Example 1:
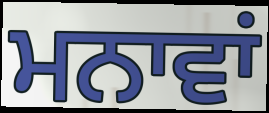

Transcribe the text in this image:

ਮਨਾਵਾਂ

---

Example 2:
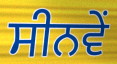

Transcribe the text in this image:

ਸੀਨਵੇਂ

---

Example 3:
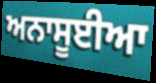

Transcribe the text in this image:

ਅਨਾਸੂਈਆ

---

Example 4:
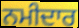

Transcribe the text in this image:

ਨਮੀਦਾਰ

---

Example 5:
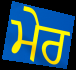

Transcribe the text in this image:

ਮੇਰ